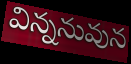
విన్ననువున